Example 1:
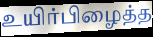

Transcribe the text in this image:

உயிர்பிழைத்த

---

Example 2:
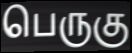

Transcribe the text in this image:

பெருகு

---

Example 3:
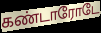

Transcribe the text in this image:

கண்டாரோடே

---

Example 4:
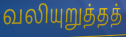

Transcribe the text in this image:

வலியுறுத்தத்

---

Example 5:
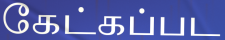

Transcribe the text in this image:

கேட்கப்பட